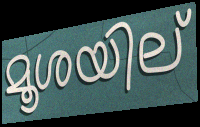
മൂശയില്